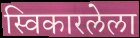
स्विकारलेला